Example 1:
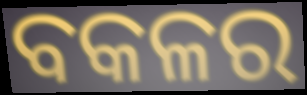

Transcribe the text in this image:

ବକଳର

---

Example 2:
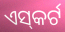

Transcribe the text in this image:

ଏସ୍‌କର୍ଟ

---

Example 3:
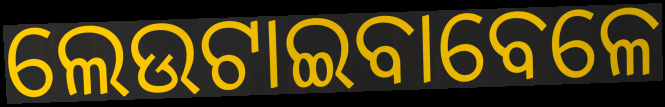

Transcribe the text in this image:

ଲେଉଟାଇବାବେଳେ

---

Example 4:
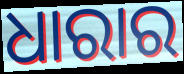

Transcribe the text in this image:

ଧାରାର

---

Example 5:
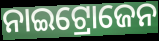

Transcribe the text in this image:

ନାଇଟ୍ରୋଜେନ